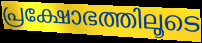
പ്രക്ഷോഭത്തിലൂടെ